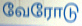
வேரோடு